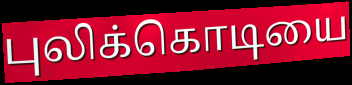
புலிக்கொடியை